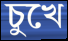
চুখে